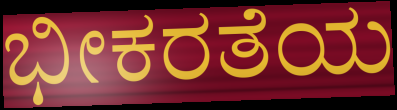
ಭೀಕರತೆಯ